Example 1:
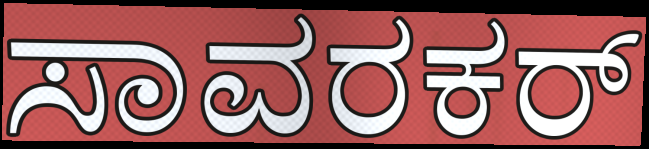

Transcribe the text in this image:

ಸಾವರಕರ್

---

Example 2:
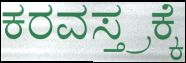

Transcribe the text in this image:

ಕರವಸ್ತ್ರಕ್ಕೆ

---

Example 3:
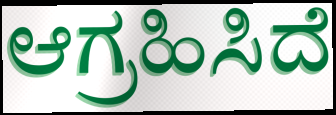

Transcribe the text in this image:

ಆಗ್ರಹಿಸಿದೆ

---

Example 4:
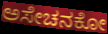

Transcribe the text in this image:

ಅಸೇಚನಕೋ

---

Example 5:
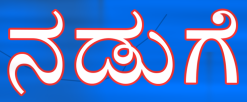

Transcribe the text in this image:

ನಡುಗೆ